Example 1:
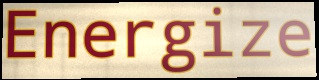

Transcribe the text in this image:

Energize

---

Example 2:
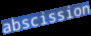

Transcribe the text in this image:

abscission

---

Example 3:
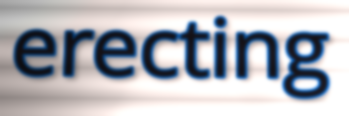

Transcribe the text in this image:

erecting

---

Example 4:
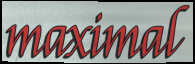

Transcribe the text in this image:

maximal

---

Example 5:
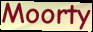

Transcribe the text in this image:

Moorty